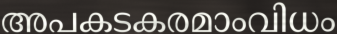
അപകടകരമാംവിധം